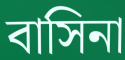
বাসিনা